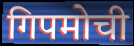
गिपमोची